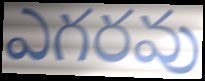
ఎగరవు